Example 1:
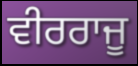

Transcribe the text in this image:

ਵੀਰਰਾਜੂ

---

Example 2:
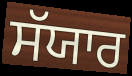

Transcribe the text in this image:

ਸੱਯਾਰ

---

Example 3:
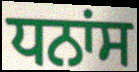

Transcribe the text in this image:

ਧਨਾਂਸ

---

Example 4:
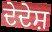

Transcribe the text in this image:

ਦੇਦੇਸ਼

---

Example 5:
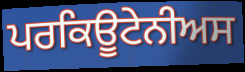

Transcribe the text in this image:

ਪਰਕਿਊਟੇਨੀਅਸ